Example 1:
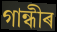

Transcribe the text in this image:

গান্ধীৰ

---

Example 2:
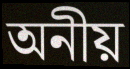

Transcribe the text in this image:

অনীয়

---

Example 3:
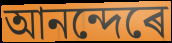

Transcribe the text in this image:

আনন্দেৰে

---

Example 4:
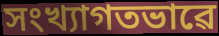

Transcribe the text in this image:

সংখ্যাগতভাৱে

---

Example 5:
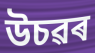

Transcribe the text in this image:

উচৱৰ